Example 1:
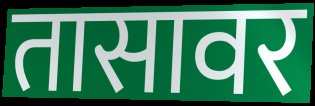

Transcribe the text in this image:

तासावर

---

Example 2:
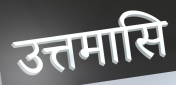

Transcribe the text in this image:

उत्तमासि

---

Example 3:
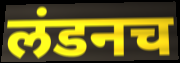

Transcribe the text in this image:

लंडनच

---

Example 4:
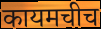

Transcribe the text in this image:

कायमचीच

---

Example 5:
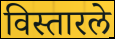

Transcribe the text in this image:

विस्तारले